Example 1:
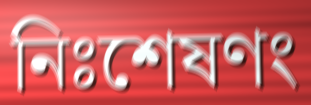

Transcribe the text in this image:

নিঃশেষণং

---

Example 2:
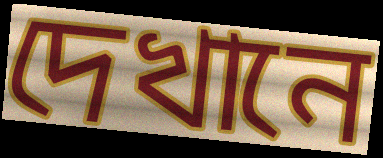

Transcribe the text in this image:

দেখানে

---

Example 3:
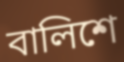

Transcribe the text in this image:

বালিশে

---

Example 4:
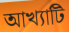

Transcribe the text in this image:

আখ্যাটি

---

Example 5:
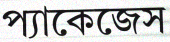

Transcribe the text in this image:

প্যাকেজেস